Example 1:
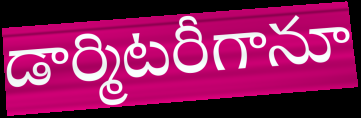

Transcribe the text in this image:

డార్మిటరీగానూ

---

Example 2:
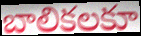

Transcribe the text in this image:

బాలికలకూ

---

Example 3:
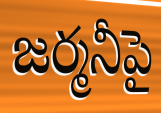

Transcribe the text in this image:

జర్మనీపై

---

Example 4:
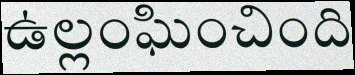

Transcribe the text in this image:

ఉల్లంఘించింది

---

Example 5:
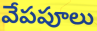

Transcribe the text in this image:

వేపపూలు